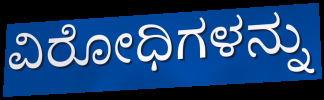
ವಿರೋಧಿಗಳನ್ನು